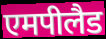
एमपीलैड